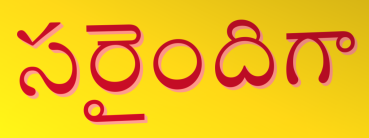
సరైందిగా